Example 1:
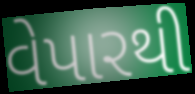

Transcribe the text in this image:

વેપારથી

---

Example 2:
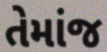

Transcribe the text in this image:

તેમાંજ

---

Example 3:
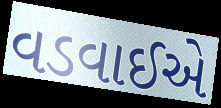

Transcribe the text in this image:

વડવાઈએ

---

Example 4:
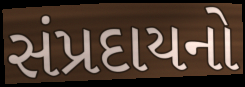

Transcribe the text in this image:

સંપ્રદાયનો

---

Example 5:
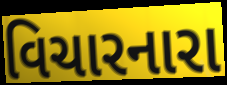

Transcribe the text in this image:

વિચારનારા